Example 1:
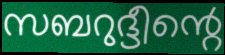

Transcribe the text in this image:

സബറുദ്ദീന്റെ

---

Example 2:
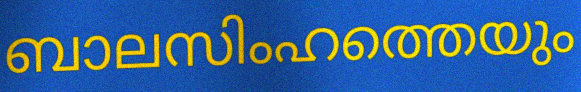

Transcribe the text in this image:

ബാലസിംഹത്തെയും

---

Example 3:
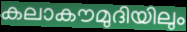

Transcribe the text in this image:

കലാകൗമുദിയിലും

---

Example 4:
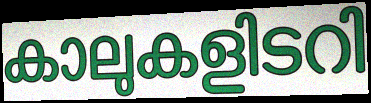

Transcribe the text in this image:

കാലുകളിടറി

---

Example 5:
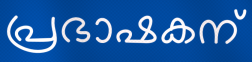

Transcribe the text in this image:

പ്രഭാഷകന്